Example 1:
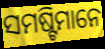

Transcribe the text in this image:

ସମଷ୍ଟିମାନେ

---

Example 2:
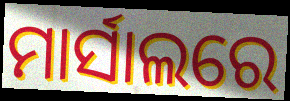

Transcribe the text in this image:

ମାର୍ସାଲରେ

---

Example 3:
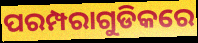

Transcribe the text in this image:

ପରମ୍ପରାଗୁଡିକରେ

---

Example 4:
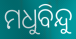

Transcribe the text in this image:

ମଧୁବିନ୍ଦୁ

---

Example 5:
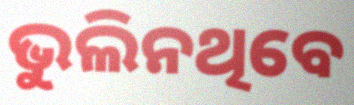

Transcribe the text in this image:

ଭୁଲିନଥିବେ